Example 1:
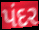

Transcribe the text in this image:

પંદર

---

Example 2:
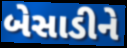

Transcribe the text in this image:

બેસાડીને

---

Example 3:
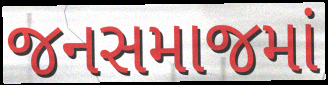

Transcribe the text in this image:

જનસમાજમાં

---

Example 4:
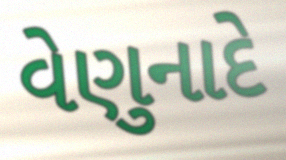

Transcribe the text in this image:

વેણુનાદે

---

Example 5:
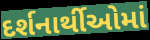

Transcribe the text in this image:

દર્શનાર્થીઓમાં